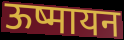
ऊष्मायन